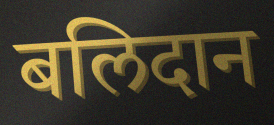
बलिदान